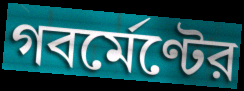
গবর্মেণ্টের